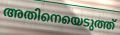
അതിനെയെടുത്ത്